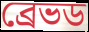
ব্রেভড